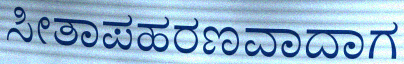
ಸೀತಾಪಹರಣವಾದಾಗ